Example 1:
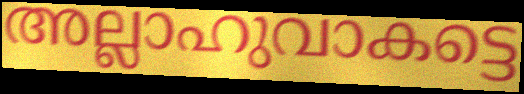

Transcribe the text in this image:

അല്ലാഹുവാകട്ടെ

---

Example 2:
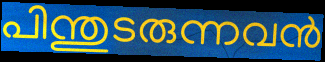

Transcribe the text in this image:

പിന്തുടരുന്നവൻ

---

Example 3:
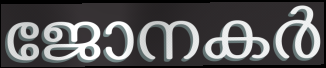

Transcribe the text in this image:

ജോനകർ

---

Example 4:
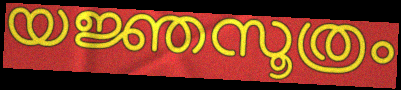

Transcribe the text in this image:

യജ്ഞസൂത്രം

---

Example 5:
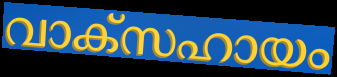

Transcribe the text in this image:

വാക്സഹായം